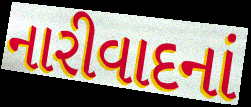
નારીવાદનાં